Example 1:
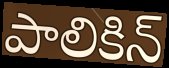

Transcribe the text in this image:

పాలికిన్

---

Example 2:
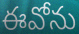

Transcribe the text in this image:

ఈవోను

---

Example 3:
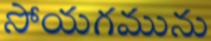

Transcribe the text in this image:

సోయగమును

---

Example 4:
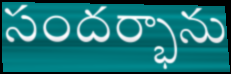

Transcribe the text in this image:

సందర్భాను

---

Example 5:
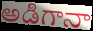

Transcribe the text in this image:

అడిగానా